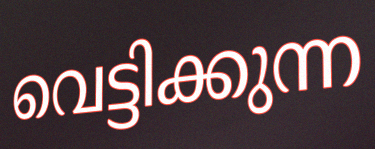
വെട്ടിക്കുന്ന